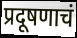
प्रदूषणाचं